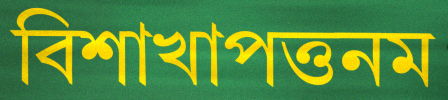
বিশাখাপত্তনম